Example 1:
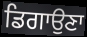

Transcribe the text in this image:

ਡਿਗਾਉਣਾ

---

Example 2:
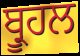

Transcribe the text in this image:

ਬ੍ਰੂਹਲ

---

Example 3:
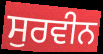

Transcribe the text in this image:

ਸੁਰਵੀਨ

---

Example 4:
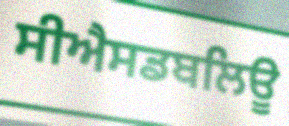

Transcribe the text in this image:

ਸੀਐਸਡਬਲਿਊ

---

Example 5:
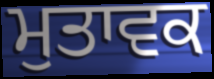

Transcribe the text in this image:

ਮੁਤਾਵਕ